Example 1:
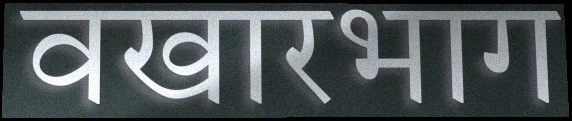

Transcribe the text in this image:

वखारभाग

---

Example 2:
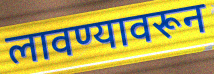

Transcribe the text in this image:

लावण्यावरून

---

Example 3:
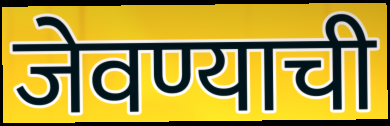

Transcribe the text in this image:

जेवण्याची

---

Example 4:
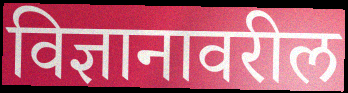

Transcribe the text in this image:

विज्ञानावरील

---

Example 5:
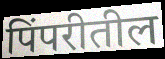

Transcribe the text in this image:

पिंपरीतील